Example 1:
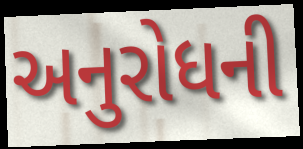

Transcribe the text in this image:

અનુરોધની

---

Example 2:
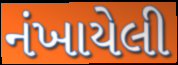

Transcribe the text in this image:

નંખાયેલી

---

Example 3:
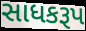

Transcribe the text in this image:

સાધકરૂપ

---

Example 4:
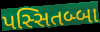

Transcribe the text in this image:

પસ્સિતબ્બા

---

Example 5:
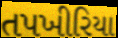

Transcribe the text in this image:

તપખીરિયા